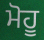
ਮੋਹੂ